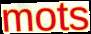
mots